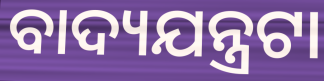
ବାଦ୍ୟଯନ୍ତ୍ରଟା